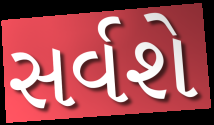
સર્વશે